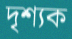
দৃশ্যক